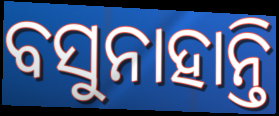
ବସୁନାହାନ୍ତି